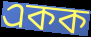
একক